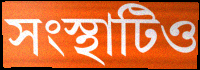
সংস্থাটিও